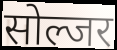
सोल्जर